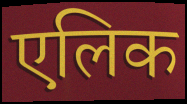
एलिक